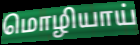
மொழியாய்